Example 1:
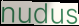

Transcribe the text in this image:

nudus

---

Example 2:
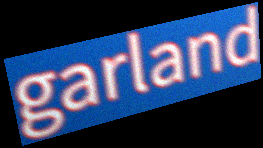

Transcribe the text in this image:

garland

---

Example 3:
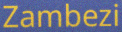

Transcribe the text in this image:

Zambezi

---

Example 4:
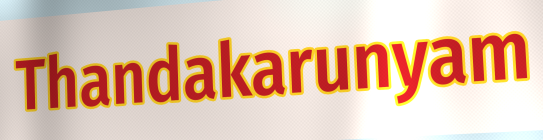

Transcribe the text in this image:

Thandakarunyam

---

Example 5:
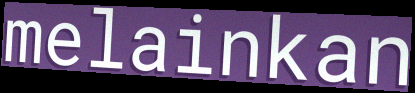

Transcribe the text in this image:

melainkan